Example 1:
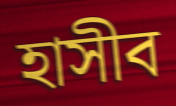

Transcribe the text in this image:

হাসীব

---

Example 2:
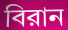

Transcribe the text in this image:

বিরান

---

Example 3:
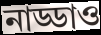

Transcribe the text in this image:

নাড্ডাও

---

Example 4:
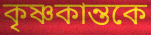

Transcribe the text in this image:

কৃষ্ণকান্তকে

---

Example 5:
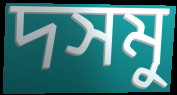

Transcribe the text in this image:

দসমু